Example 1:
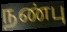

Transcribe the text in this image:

நண்பு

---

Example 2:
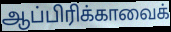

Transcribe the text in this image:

ஆப்பிரிக்காவைக்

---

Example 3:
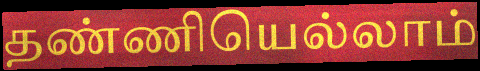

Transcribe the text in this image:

தண்ணியெல்லாம்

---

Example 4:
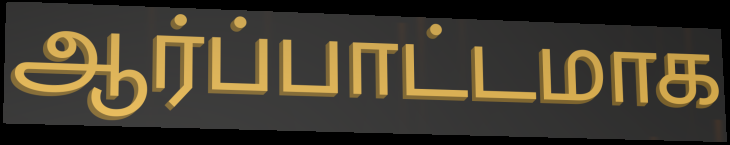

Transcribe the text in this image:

ஆர்ப்பாட்டமாக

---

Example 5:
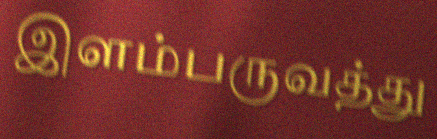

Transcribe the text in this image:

இளம்பருவத்து